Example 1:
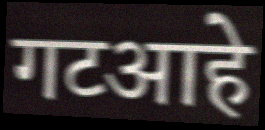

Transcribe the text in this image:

गटआहे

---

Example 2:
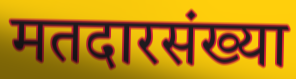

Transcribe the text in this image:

मतदारसंख्या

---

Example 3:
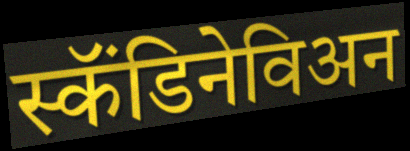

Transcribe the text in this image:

स्कॅंडिनेविअन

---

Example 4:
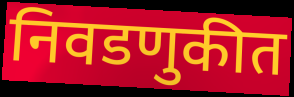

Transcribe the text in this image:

निवडणुकीत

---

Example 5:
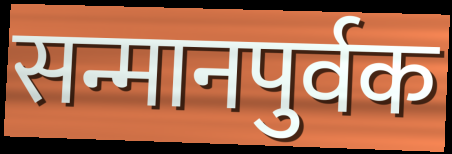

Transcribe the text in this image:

सन्मानपुर्वक